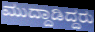
ಮುದ್ದಾಡಿದ್ದರು